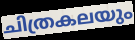
ചിത്രകലയും